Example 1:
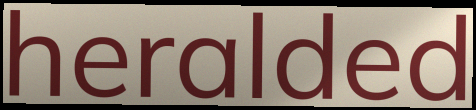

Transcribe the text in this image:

heralded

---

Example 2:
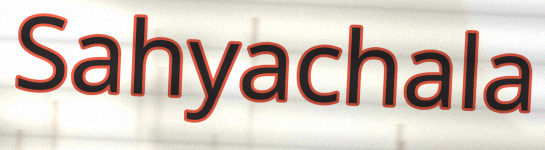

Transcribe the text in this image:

Sahyachala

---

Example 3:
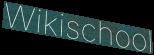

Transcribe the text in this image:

Wikischool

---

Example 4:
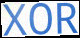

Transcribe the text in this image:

XOR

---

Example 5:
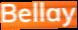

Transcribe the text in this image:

Bellay